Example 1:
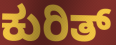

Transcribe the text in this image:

ಕುರಿತ್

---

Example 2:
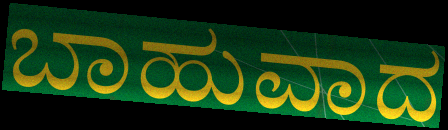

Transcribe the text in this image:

ಬಾಹುವಾದ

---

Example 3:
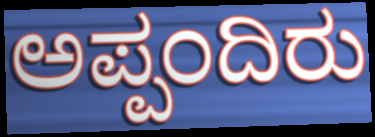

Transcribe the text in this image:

ಅಪ್ಪಂದಿರು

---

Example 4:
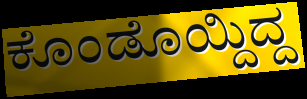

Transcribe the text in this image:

ಕೊಂಡೊಯ್ದಿದ್ದ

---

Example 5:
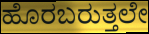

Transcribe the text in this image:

ಹೊರಬರುತ್ತಲೇ